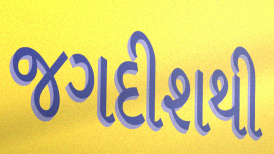
જગદીશથી